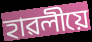
হাৱলীয়ে